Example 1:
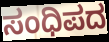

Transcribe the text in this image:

ಸಂಧಿಪದ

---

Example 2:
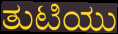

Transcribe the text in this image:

ತುಟಿಯು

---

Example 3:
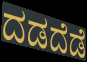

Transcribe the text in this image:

ದಡದೆಡೆ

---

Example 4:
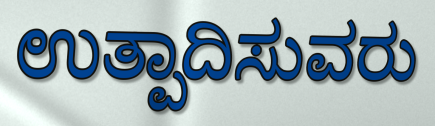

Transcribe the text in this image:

ಉತ್ಪಾದಿಸುವರು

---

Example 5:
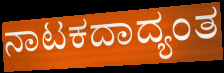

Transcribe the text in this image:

ನಾಟಕದಾದ್ಯಂತ